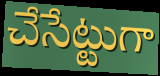
చేసేట్టుగా